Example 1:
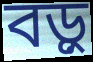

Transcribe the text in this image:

বড়ু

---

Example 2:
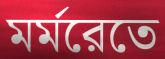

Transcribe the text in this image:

মর্মরেতে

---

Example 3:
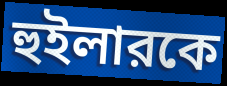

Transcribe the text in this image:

হুইলারকে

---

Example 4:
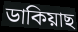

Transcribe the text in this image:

ডাকিয়াছ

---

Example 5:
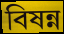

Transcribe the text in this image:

বিষন্ন